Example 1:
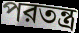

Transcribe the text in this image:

পরতন্ত্র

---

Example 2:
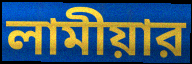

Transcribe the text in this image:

লামীয়ার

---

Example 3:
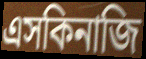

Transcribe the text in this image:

এসকিনাজি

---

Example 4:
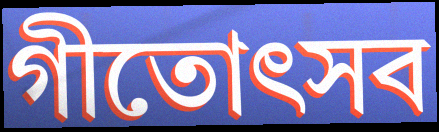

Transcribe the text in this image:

গীতোৎসব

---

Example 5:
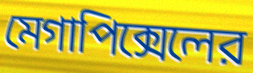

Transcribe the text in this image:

মেগাপিক্সেলের